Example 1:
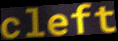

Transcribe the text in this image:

cleft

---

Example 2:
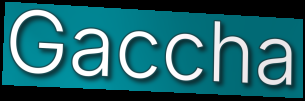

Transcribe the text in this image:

Gaccha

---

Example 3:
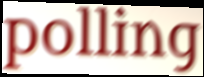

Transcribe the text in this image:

polling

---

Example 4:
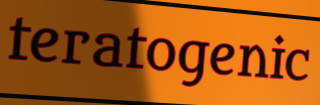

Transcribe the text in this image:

teratogenic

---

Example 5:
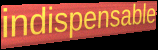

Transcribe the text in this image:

indispensable